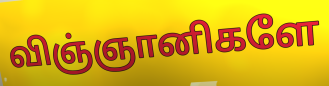
விஞ்ஞானிகளே